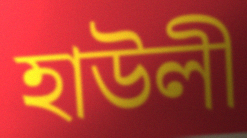
হাউলী